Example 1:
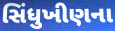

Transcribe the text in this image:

સિંધુખીણના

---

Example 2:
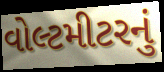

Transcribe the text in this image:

વોલ્ટમીટરનું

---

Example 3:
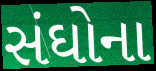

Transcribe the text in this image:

સંઘોના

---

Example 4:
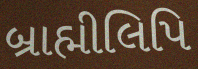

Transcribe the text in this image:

બ્રાહ્મીલિપિ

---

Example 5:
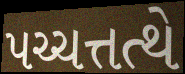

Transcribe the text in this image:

પચ્ચત્તત્થે